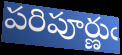
పరిపూర్ణుఁ